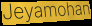
Jeyamohan